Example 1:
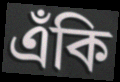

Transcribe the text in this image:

এঁকি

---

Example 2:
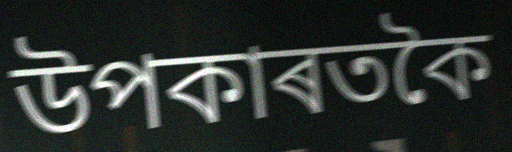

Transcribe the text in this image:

উপকাৰতকৈ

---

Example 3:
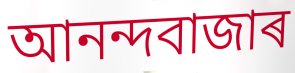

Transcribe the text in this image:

আনন্দবাজাৰ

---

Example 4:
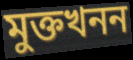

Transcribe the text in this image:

মুক্তখনন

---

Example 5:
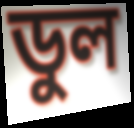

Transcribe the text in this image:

ডুল